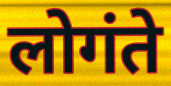
लोगंते